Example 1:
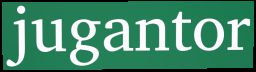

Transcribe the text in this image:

jugantor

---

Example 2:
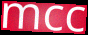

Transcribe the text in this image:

mcc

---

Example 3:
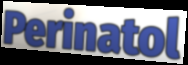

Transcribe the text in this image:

Perinatol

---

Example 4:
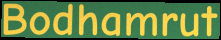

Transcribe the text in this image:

Bodhamrut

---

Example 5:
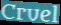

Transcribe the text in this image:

Cruel